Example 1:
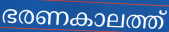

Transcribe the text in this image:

ഭരണകാലത്ത്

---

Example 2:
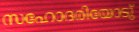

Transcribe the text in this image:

സഹോദരിയോടു്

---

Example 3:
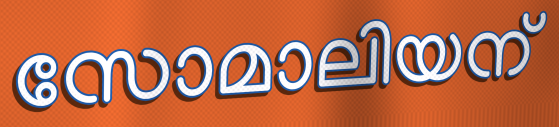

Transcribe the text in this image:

സോമാലിയന്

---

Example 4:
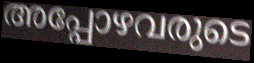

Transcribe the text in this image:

അപ്പോഴവരുടെ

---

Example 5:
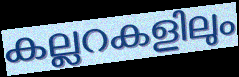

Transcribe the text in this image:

കല്ലറകളിലും